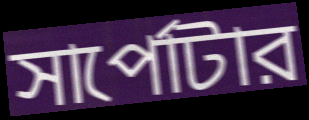
সার্পোটার